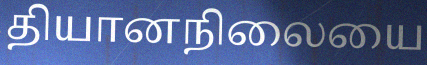
தியானநிலையை